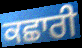
ਕਛਾਰੀ